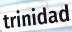
trinidad